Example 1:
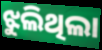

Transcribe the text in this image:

ଝୁଲିଥିଲା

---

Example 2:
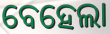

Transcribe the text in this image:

ବେହେଲା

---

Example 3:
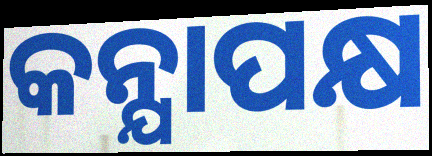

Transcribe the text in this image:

କନ୍ଯାପକ୍ଷ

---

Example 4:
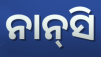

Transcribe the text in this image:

ନାନ୍‌ସି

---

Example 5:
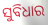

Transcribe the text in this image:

ସୁବିଧାର